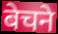
बेचने